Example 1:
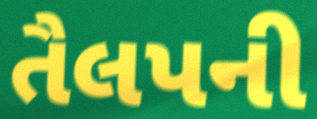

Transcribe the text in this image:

તૈલપની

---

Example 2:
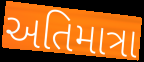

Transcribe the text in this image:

અતિમાત્રા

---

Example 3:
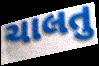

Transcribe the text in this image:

ચાલતુ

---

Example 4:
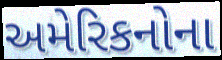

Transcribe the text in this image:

અમેરિકનોના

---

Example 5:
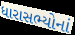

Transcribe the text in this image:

ધારાસભ્યોનાં